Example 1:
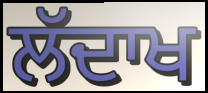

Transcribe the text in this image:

ਲੱਦਾਖ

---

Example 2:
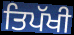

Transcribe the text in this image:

ਤਿਪੱਖੀ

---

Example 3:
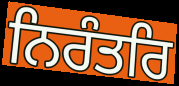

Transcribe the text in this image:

ਨਿਰੰਤਰਿ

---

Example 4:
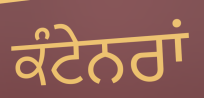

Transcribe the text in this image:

ਕੰਟੇਨਰਾਂ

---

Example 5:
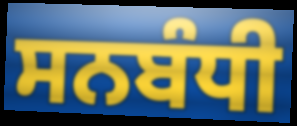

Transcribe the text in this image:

ਸਨਬੰਧੀ